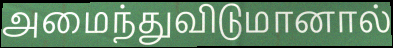
அமைந்துவிடுமானால்